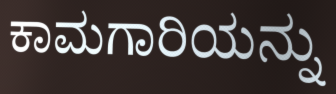
ಕಾಮಗಾರಿಯನ್ನು